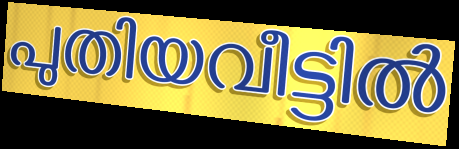
പുതിയവീട്ടിൽ